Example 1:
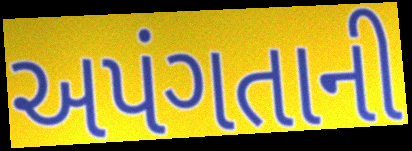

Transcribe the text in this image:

અપંગતાની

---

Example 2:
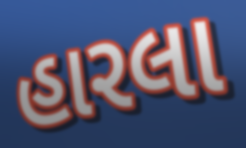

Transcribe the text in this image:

હારલા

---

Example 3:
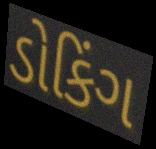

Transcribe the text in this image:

ડોકિંગ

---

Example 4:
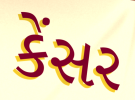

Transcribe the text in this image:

કેંસર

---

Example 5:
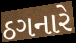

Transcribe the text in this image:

ઠગનારે